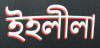
ইহলীলা